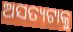
ଅସତ୍ୟଟାକୁ